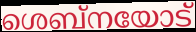
ശെബ്നയോട്